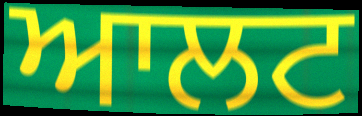
ਆਲਟ